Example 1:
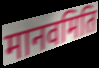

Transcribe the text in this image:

मानवमिति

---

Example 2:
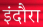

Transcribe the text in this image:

इंदौरा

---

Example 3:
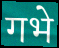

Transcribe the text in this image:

गभे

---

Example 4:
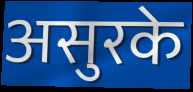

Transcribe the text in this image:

असुरके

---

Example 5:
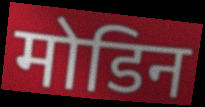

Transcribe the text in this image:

मोडिन